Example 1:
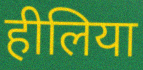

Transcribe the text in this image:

हीलिया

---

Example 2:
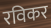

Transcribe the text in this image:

रविकर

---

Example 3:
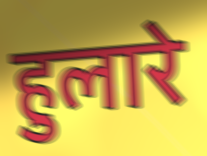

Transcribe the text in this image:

हुलारे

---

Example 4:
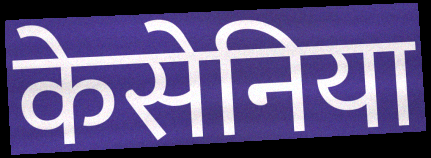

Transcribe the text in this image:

केसेनिया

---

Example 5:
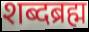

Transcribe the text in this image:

शब्दब्रह्म